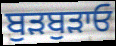
ਬੁੜਬੁੜਾਓ